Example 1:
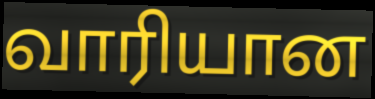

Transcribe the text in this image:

வாரியான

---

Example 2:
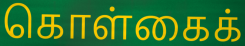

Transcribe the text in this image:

கொள்கைக்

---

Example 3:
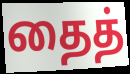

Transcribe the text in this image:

தைத்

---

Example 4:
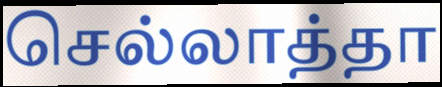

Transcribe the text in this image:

செல்லாத்தா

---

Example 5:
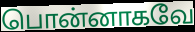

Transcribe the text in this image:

பொன்னாகவே